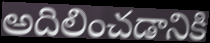
అదిలించడానికి